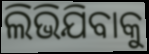
ଲିଭିଯିବାକୁ